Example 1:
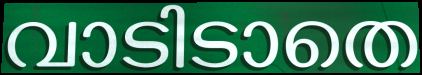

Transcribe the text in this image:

വാടിടാതെ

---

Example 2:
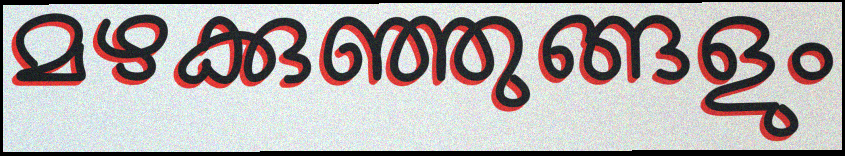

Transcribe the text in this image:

മഴക്കുഞ്ഞുങ്ങളും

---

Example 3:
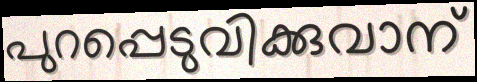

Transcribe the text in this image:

പുറപ്പെടുവിക്കുവാന്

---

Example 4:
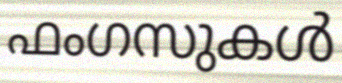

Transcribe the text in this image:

ഫംഗസുകൾ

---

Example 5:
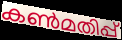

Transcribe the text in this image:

കൺമതിപ്പ്